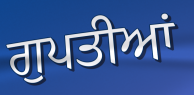
ਗੁਪਤੀਆਂ